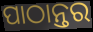
ପାଠାନ୍ତର